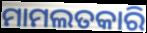
ମାମଲତକାରି